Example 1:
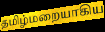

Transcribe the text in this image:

தமிழ்மறையாகிய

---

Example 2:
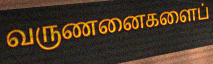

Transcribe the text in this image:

வருணனைகளைப்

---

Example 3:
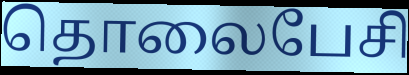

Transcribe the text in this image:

தொலைபேசி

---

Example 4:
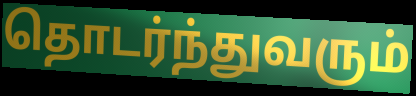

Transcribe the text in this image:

தொடர்ந்துவரும்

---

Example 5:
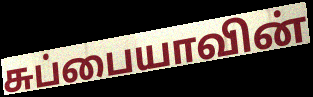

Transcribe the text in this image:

சுப்பையாவின்